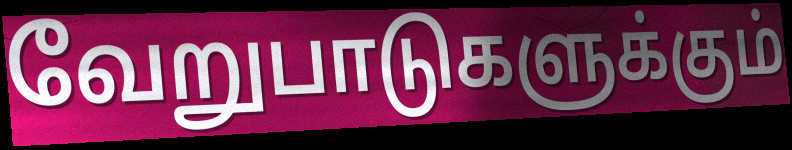
வேறுபாடுகளுக்கும்